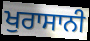
ਖੁਰਾਸਾਨੀ